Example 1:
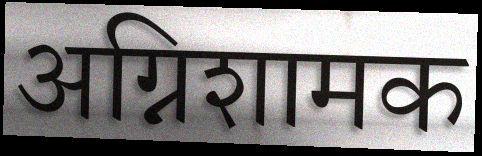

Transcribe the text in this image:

अग्निशामक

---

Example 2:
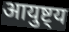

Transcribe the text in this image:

आयुष्ट्य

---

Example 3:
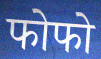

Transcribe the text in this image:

फोफो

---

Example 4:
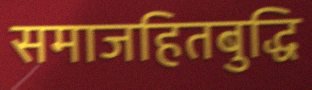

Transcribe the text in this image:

समाजहितबुद्धि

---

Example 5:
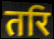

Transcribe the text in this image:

तरि